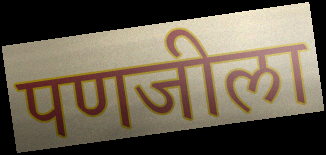
पणजीला